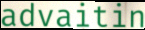
advaitin